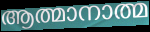
ആത്മാനാത്മ